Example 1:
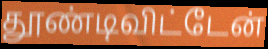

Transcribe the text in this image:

தூண்டிவிட்டேன்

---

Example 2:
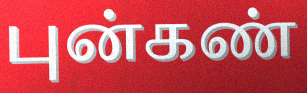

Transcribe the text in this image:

புன்கண்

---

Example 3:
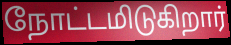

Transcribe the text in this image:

நோட்டமிடுகிறார்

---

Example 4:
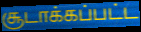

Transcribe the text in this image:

சூடாக்கப்பட்ட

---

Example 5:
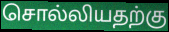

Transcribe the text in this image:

சொல்லியதற்கு